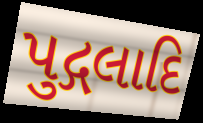
પુદ્ગલાદિ